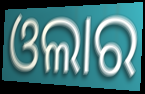
ଓଲାର